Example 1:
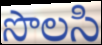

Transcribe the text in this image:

సొలసి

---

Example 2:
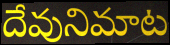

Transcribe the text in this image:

దేవునిమాట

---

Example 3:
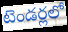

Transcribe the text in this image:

టెండర్లలో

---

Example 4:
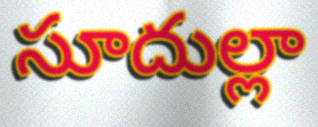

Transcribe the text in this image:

సూదుల్లా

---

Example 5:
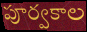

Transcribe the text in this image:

పూర్వకాల